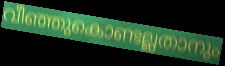
വീഞ്ഞുകൊണ്ടല്ലതാനും